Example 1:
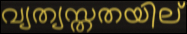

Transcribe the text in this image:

വ്യത്യസ്തതയില്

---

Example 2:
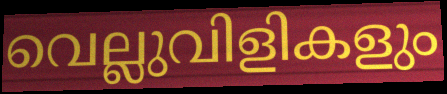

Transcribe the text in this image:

വെല്ലുവിളികളും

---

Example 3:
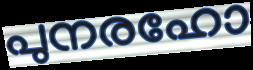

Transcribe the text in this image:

പുനരഹോ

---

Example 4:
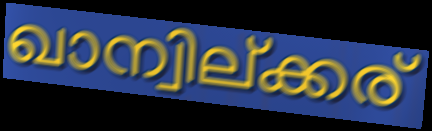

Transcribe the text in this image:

ഖാന്വില്ക്കര്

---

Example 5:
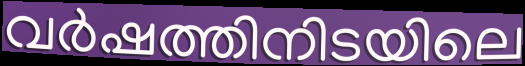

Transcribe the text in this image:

വർഷത്തിനിടയിലെ